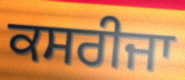
ਕਸਰੀਜਾ